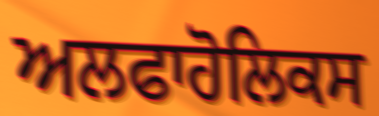
ਅਲਫਾਹੋਲਿਕਸ